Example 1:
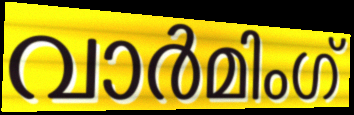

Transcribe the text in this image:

വാർമിംഗ്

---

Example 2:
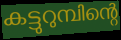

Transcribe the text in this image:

കട്ടുറുമ്പിന്റെ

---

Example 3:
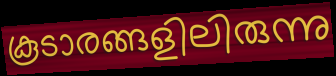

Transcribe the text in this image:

കൂടാരങ്ങളിലിരുന്നു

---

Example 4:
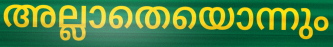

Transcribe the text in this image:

അല്ലാതെയൊന്നും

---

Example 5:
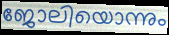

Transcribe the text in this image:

ജോലിയൊന്നും